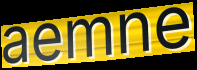
aemne